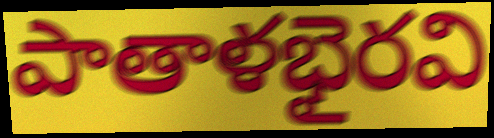
పాతాళభైరవి